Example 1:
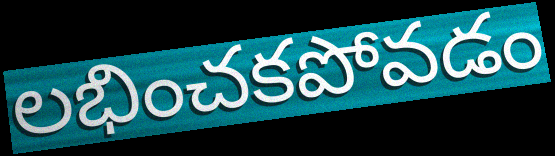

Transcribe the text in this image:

లభించకపోవడం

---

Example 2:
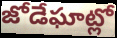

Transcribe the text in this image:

జోడేఘాట్లో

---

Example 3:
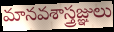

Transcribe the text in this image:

మానవశాస్త్రజ్ఞులు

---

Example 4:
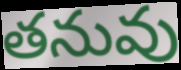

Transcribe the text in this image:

తనువు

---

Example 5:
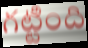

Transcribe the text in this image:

గట్టింది